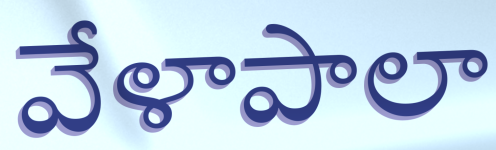
వేళాపాలా